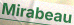
Mirabeau